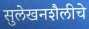
सुलेखनशैलीचे